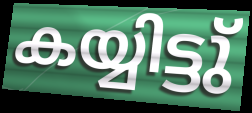
കയ്യിട്ടു്